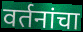
वर्तनांचा